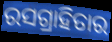
ରସଗ୍ରାହିତାର